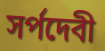
সর্পদেবী